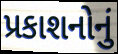
પ્રકાશનોનું